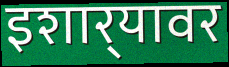
इशार्‍यावर